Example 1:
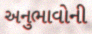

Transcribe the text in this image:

અનુભાવોની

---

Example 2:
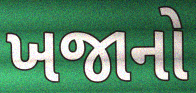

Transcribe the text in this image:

ખજાનો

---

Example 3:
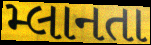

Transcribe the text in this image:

મ્લાનતા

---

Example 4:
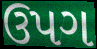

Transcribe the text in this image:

ઉપગ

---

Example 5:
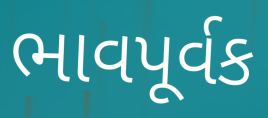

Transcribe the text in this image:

ભાવપૂર્વક